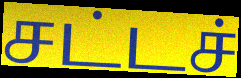
சட்டச்